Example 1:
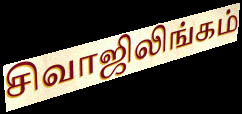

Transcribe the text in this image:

சிவாஜிலிங்கம்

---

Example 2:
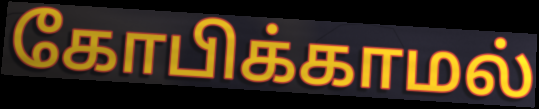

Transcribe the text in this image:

கோபிக்காமல்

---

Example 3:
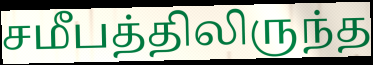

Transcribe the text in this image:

சமீபத்திலிருந்த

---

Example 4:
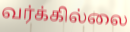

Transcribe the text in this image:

வர்க்கில்லை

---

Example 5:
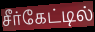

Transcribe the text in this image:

சீர்கேட்டில்